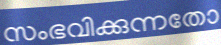
സംഭവിക്കുന്നതോ